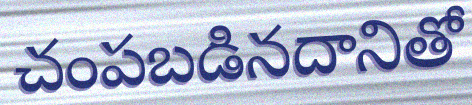
చంపబడినదానితో